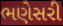
ભણેસરી